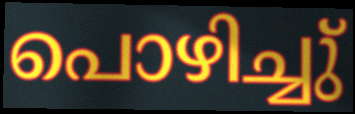
പൊഴിച്ചു്